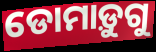
ଡୋମାଡ଼ୁଗୁ